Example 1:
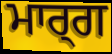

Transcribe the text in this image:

ਮਾਰ੍ਗ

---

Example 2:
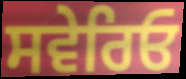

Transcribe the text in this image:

ਸਵੇਰਿਓ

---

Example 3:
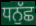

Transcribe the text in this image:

ਧਨੁੱਛ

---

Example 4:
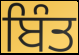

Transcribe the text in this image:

ਬਿੰਤ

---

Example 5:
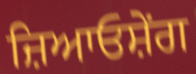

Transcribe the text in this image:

ਜ਼ਿਆਓਸ਼ੇਂਗ